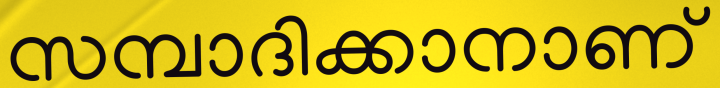
സമ്പാദിക്കാനാണ്